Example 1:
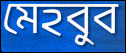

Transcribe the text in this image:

মেহবুব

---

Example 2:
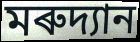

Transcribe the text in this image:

মৰুদ্যান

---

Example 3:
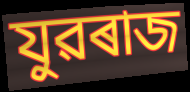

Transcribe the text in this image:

যুৱৰাজ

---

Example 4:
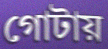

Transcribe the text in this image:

গোটায়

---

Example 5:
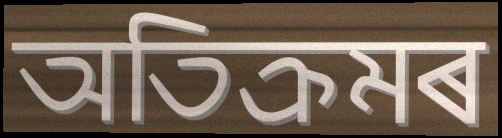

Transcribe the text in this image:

অতিক্ৰমৰ